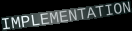
IMPLEMENTATION